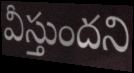
వీస్తుందని